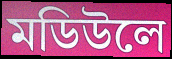
মডিউলে